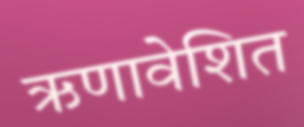
ऋणावेशित